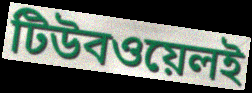
টিউবওয়েলই